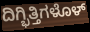
ದಿಗ್ಭಿತ್ತಿಗಳೊಳ್